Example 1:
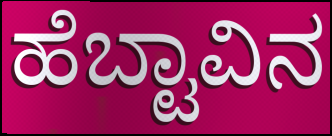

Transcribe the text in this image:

ಹೆಬ್ಟಾವಿನ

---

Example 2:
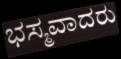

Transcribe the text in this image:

ಭಸ್ಮವಾದರು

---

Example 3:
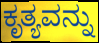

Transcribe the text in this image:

ಕೃತ್ಯವನ್ನು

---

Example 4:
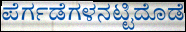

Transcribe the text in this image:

ಪೆರ್ಗಡೆಗಳನಟ್ಟಿದೊಡೆ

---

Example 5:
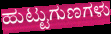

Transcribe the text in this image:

ಹುಟ್ಟುಗುಣಗಳು